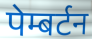
पेम्बर्टन